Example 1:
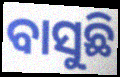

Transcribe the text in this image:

ବାସୁଛି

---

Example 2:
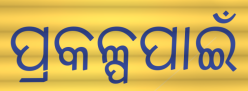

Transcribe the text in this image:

ପ୍ରକଳ୍ପପାଇଁ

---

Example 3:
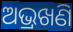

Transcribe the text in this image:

ଅଭ୍ରଖଣି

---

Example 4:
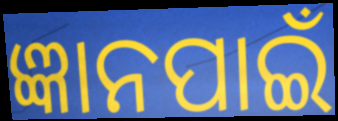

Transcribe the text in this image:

ଜ୍ଞାନପାଇଁ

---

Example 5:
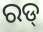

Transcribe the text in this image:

ରଡ୍